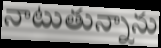
నాటుతున్నాను